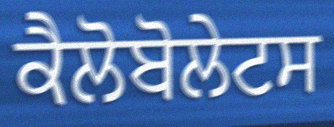
ਕੈਲੋਬੋਲੇਟਸ